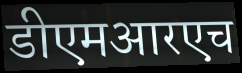
डीएमआरएच